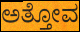
ಅತ್ತೋವ